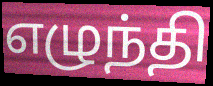
எழுந்தி